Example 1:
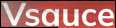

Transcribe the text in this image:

Vsauce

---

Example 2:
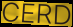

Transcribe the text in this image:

CERD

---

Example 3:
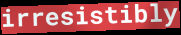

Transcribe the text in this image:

irresistibly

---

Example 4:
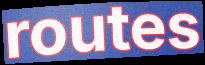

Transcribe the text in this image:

routes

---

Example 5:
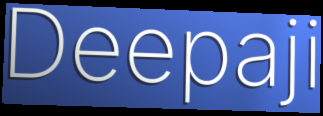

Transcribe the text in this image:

Deepaji